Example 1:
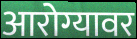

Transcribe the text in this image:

आरोग्यावर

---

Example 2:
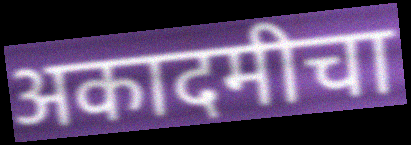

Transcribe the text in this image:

अकादमीचा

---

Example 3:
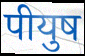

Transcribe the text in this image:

पीयुष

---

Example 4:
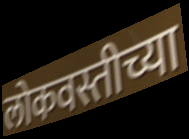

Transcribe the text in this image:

लोकवस्तीच्या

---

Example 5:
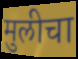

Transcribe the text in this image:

मुलीचा